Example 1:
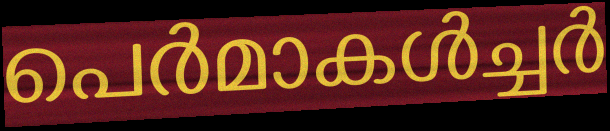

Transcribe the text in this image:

പെർമാകൾച്ചർ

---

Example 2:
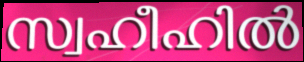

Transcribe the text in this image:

സ്വഹീഹിൽ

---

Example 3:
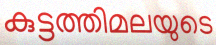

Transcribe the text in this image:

കുട്ടത്തിമലയുടെ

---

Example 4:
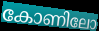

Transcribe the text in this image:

കോണിലോ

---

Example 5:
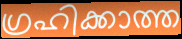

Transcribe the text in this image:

ഗ്രഹിക്കാത്ത